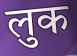
लुक